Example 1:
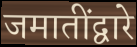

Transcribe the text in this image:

जमातींद्वारे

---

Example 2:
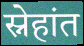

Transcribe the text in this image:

स्नेहांत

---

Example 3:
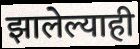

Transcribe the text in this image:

झालेल्याही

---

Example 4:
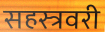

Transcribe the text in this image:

सहस्त्रवरी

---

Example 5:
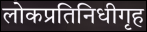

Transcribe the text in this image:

लोकप्रतिनिधीगृह